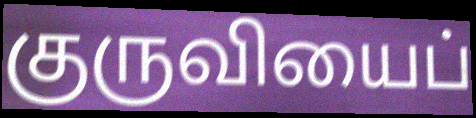
குருவியைப்